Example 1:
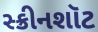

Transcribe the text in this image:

સ્ક્રીનશૉટ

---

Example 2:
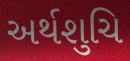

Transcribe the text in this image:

અર્થશુચિ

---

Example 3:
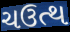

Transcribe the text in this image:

ચઉત્થ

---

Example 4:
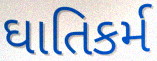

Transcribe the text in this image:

ઘાતિકર્મ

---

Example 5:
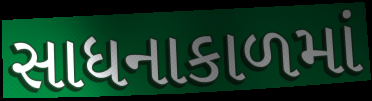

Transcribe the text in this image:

સાધનાકાળમાં